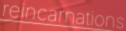
reincarnations